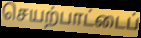
செயற்பாட்டைப்